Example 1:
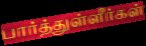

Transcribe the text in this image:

பார்த்துள்ளீர்கள்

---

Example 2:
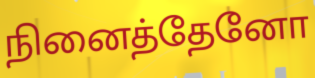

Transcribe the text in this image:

நினைத்தேனோ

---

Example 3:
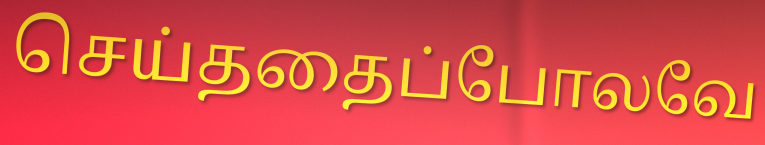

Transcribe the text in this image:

செய்ததைப்போலவே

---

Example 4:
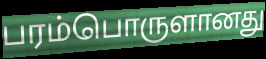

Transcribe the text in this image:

பரம்பொருளானது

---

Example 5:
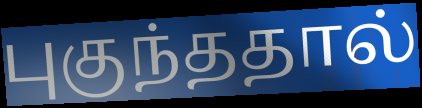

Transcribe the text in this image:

புகுந்ததால்